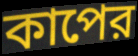
কাপের